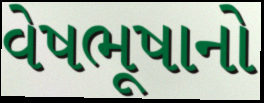
વેષભૂષાનો